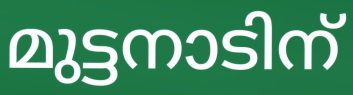
മുട്ടനാടിന്